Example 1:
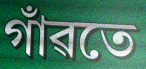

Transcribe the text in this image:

গাঁৱতে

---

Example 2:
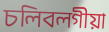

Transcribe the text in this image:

চলিবলগীয়া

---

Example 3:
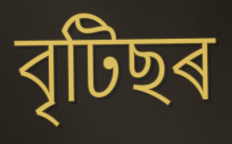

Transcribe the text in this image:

বৃটিছৰ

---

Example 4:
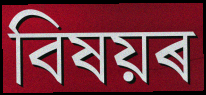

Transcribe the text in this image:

বিষয়ৰ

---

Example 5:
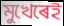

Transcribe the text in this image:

মুখেৰেই